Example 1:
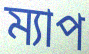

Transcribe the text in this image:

ম্যাপ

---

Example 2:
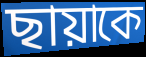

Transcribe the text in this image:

ছায়াকে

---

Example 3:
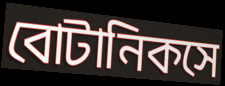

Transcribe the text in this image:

বোটানিকসে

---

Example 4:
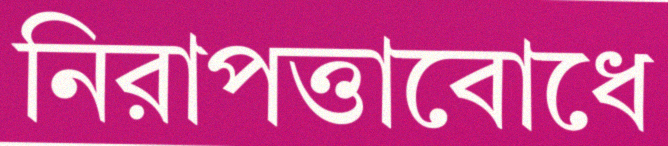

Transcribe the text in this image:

নিরাপত্তাবোধে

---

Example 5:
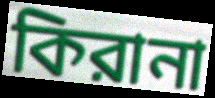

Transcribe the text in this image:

কিরানা